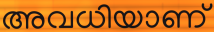
അവധിയാണ്